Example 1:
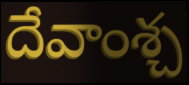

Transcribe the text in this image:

దేవాంశ్చ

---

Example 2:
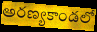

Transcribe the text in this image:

అరణ్యకాండలో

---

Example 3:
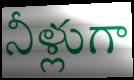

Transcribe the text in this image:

నీళ్లుగా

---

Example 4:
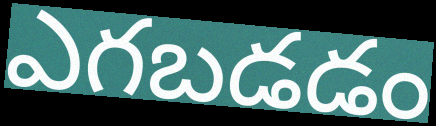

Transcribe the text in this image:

ఎగబడడం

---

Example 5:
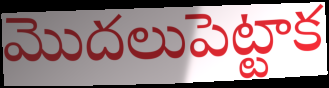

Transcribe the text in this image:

మొదలుపెట్టాక